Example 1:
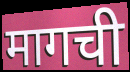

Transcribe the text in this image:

मागची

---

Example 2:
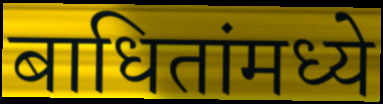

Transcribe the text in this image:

बाधितांमध्ये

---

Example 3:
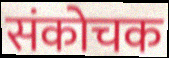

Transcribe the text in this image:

संकोचक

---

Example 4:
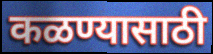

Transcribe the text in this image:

कळण्यासाठी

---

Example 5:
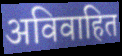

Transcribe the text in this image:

अविवाहित